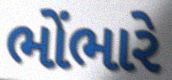
ભોંભારે